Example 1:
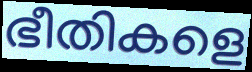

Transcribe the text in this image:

ഭീതികളെ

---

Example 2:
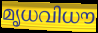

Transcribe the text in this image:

മൃധവിധൗ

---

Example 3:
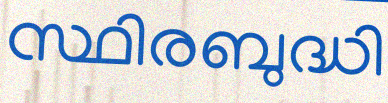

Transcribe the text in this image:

സ്ഥിരബുദ്ധി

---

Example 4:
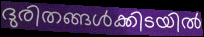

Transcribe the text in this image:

ദുരിതങ്ങൾക്കിടയിൽ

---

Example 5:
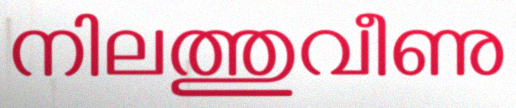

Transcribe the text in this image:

നിലത്തുവീണു